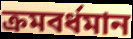
ক্রমবর্ধমান